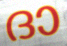
ദാ